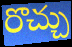
రొచ్చు